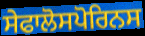
ਸੇਫਾਲੋਸਪੋਰਿਨਸ